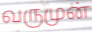
வருமுன்